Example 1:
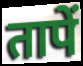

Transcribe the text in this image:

तापें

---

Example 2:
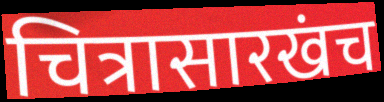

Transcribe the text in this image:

चित्रासारखंच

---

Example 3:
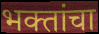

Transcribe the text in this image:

भक्तांचा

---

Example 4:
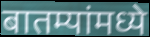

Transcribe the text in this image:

बातम्यांमध्ये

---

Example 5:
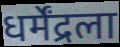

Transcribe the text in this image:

धर्मेंद्रला